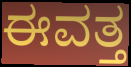
ಈವತ್ತ